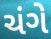
ચંગે